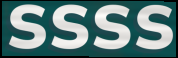
ssss